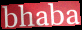
bhaba